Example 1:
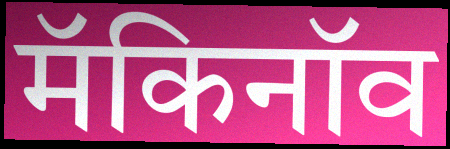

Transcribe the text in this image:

मॅकिनॉव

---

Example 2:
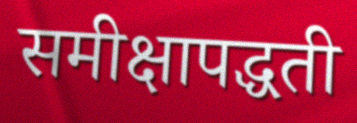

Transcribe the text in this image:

समीक्षापद्धती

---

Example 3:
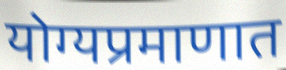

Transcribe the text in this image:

योग्यप्रमाणात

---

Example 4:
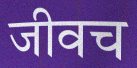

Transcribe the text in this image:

जीवच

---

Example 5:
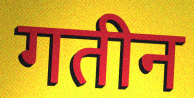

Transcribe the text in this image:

गतीन